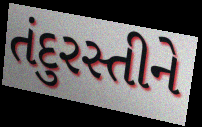
તંદુરસ્તીને